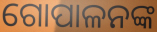
ଗୋପାଳନଙ୍କ